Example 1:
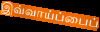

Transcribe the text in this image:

இவ்வாய்ப்பைப்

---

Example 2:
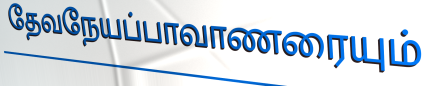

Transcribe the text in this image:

தேவநேயப்பாவாணரையும்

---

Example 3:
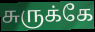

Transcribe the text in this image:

சுருக்கே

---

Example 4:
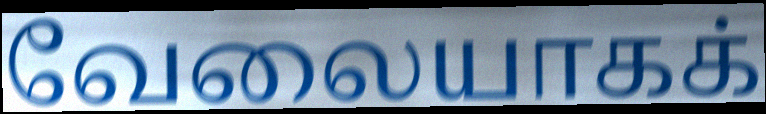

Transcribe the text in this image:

வேலையாகக்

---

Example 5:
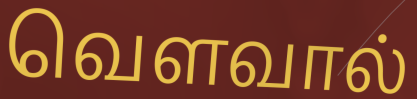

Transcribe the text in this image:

வெளவால்